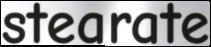
stearate